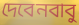
দেবেনবাবু